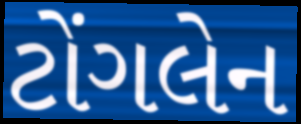
ટોંગલેન